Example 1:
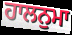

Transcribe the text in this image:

ਹਾਲਨੁਮਾ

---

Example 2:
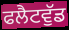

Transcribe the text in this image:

ਫਲੈਟਵੁੱਡ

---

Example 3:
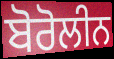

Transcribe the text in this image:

ਬੋਰੋਲੀਨ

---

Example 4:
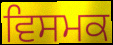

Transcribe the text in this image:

ਵਿਸਮਕ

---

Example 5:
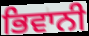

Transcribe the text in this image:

ਭਿਵਾਨੀ